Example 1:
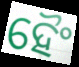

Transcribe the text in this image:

ହୈଂ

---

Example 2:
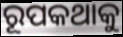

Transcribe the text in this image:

ରୂପକଥାକୁ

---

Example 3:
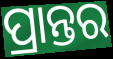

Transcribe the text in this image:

ପ୍ରାନ୍ତର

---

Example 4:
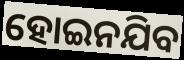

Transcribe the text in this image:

ହୋଇନଯିବ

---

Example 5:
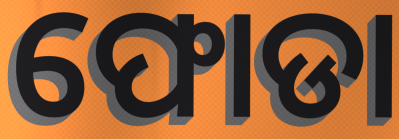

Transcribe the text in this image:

ଫୋଡା